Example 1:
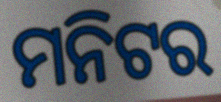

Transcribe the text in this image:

ମନିଟର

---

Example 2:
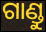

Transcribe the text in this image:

ଗାଣ୍ଡୁ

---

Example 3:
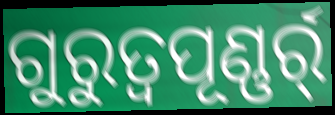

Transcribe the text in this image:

ଗୁରୁତ୍ୱପୂଣ୍ଣର୍ର୍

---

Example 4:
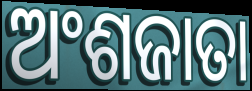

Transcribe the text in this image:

ଅଂଶଜାତା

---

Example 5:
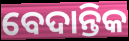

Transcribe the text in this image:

ବେଦାନ୍ତିକ